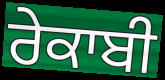
ਰੇਕਾਬੀ